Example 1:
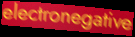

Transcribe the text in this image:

electronegative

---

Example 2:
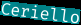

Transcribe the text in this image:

Ceriello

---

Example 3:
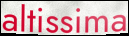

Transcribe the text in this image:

altissima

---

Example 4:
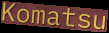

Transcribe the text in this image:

Komatsu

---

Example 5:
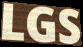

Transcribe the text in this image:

LGS